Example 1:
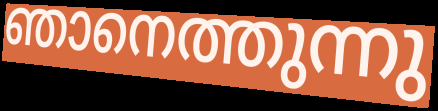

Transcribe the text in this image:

ഞാനെത്തുന്നു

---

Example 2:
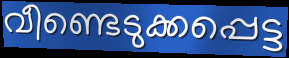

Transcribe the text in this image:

വീണ്ടെടുക്കപ്പെട്ട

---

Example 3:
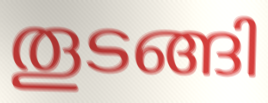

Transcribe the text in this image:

തൂടങ്ങി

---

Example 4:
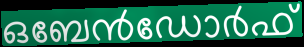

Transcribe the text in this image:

ഒബേൻഡോർഫ്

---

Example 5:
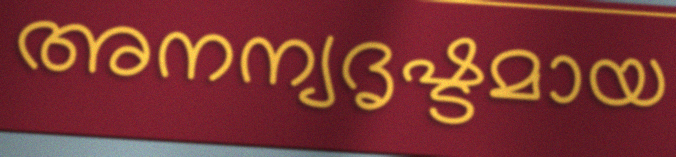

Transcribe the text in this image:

അനന്യദൃഷ്ടമായ